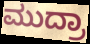
ಮುದ್ರಾ